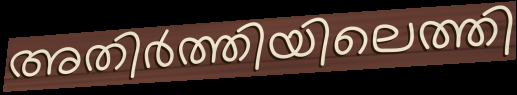
അതിർത്തിയിലെത്തി